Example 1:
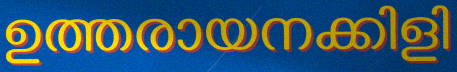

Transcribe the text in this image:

ഉത്തരായനക്കിളി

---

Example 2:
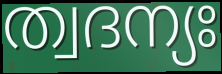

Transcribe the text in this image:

ത്വദന്യഃ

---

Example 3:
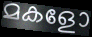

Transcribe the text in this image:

മകളോ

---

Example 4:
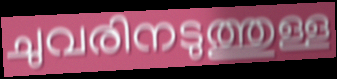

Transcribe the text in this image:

ചുവരിനടുത്തുള്ള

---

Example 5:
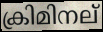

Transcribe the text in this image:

ക്രിമിനല്